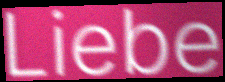
Liebe